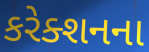
કરેક્શનના